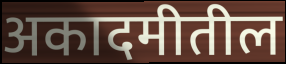
अकादमीतील